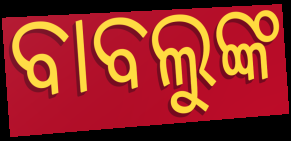
ବାବଲୁଙ୍କ